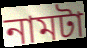
নামটা